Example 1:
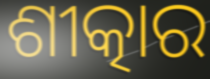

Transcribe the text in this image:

ଶୀତ୍କାର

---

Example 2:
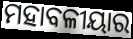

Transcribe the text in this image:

ମହାବଳୀୟାର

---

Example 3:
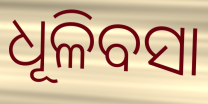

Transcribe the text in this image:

ଧୂଳିବସା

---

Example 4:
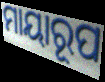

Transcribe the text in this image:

ମାୟାରୂପ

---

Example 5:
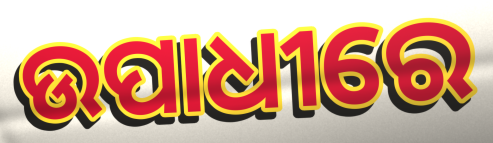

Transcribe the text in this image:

ଉପାଧୀରେ